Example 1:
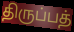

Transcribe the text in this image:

திருப்பத்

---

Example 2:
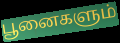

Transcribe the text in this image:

பூனைகளும்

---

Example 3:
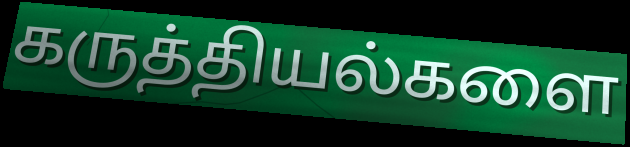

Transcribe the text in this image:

கருத்தியல்களை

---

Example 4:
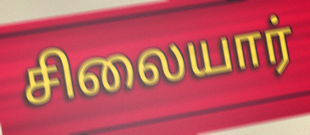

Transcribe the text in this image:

சிலையார்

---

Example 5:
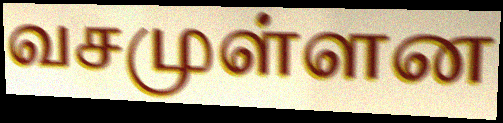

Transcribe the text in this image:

வசமுள்ளன